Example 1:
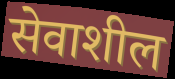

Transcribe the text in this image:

सेवाशील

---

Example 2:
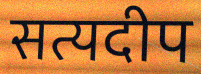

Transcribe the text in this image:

सत्यदीप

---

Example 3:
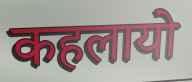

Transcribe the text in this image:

कहलायो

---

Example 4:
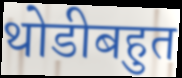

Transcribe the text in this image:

थोडीबहुत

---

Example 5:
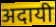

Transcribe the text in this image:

अदायी